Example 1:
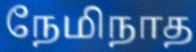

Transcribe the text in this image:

நேமிநாத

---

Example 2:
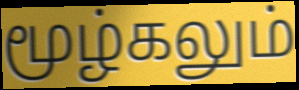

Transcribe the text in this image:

மூழ்கலும்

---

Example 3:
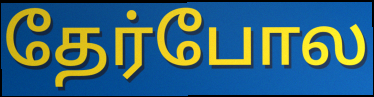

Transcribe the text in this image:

தேர்போல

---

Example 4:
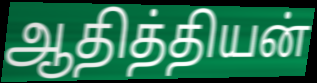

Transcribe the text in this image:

ஆதித்தியன்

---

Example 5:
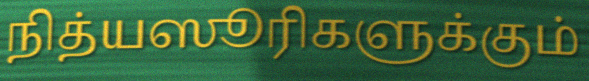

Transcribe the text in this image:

நித்யஸூரிகளுக்கும்